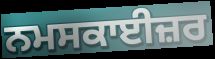
ਨਮਸਕਾਈਜ਼ਰ